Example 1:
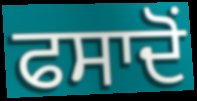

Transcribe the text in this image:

ਫਸਾਦੋਂ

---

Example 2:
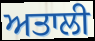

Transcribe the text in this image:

ਅਤਾਲੀ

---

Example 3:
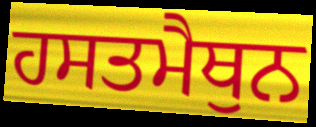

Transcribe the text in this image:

ਹਸਤਮੈਥੁਨ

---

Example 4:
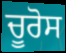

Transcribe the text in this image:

ਚੂਰੋਸ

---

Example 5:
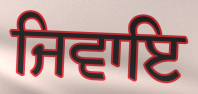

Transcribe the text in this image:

ਜਿਵਾਇ